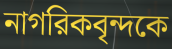
নাগরিকবৃন্দকে